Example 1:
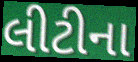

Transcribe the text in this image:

લીટીના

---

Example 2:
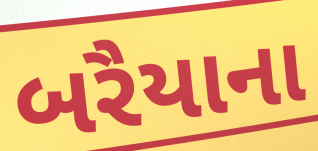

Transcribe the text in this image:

બરૈયાના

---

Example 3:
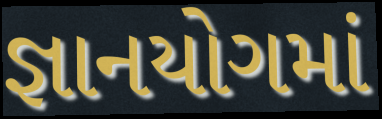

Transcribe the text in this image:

જ્ઞાનયોગમાં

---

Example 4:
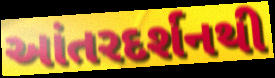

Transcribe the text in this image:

આંતરદર્શનથી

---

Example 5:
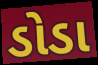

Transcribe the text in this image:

ડોડા